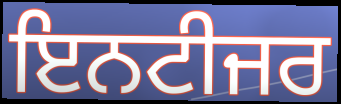
ਇਨਟੀਜਰ